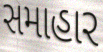
સમાહાર